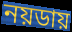
নয়ডায়